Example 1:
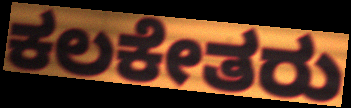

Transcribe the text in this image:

ಕಲಕೇತರು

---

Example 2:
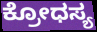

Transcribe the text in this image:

ಕ್ರೋಧಸ್ಯ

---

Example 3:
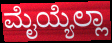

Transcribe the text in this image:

ಮೈಯ್ಯೆಲ್ಲಾ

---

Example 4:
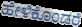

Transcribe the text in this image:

ಹೇಳಿಕೊಂಡರೆ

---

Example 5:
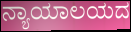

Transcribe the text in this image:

ನ್ಯಾಯಾಲಯದ